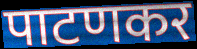
पाटणकर